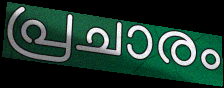
പ്രചാരം